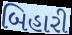
બિહારી